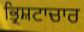
ਭ੍ਰਿਸ਼ਟਾਚਾਰ